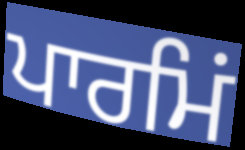
ਪਾਰਮਿਂ